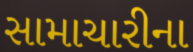
સામાચારીના